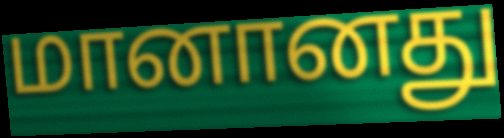
மானானது